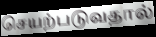
செயற்படுவதால்